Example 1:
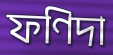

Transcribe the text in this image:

ফণিদা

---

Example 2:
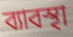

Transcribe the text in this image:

ব্যাবস্থা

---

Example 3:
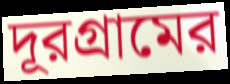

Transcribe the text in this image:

দূরগ্রামের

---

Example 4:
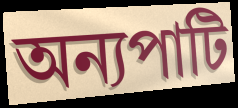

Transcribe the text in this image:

অন্যপাটি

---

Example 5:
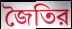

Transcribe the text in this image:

জৈতির